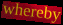
whereby